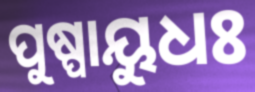
ପୁଷ୍ପାୟୁଧଃ